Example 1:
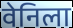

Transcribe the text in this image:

वेनिला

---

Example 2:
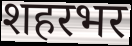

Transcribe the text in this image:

शहरभर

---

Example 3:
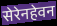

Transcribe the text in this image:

सेरेनहेवन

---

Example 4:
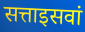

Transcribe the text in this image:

सत्ताइसवां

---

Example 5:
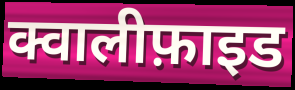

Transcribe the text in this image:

क्वालीफ़ाइड